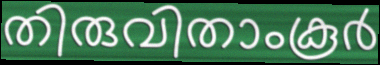
തിരുവിതാംകൂർ